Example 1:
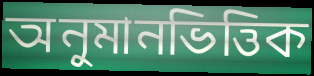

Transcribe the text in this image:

অনুমানভিত্তিক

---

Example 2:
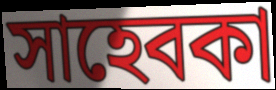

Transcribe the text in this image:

সাহেবকা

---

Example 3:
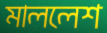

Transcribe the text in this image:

মাললেশ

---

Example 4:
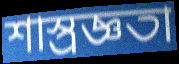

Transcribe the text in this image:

শাস্ত্রজ্ঞতা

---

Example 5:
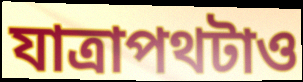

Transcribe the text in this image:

যাত্রাপথটাও